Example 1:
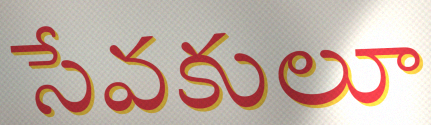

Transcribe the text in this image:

సేవకులూ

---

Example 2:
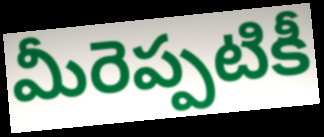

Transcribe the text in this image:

మీరెప్పటికీ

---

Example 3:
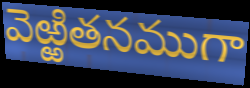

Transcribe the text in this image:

వెఱ్ఱితనముగా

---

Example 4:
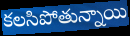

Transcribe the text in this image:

కలసిపోతున్నాయి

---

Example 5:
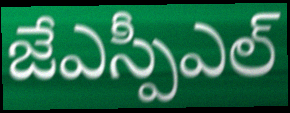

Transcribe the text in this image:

జేఎస్పీఎల్